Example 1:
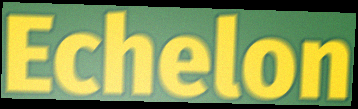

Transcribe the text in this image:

Echelon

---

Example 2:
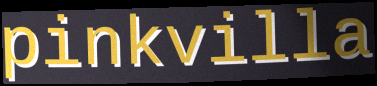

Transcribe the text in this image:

pinkvilla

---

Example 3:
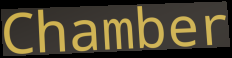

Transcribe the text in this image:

Chamber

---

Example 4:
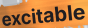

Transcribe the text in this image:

excitable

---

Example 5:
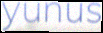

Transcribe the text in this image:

yunus